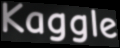
Kaggle